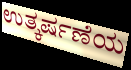
ಉತ್ಕರ್ಷಣೆಯ